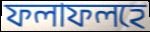
ফলাফলহে